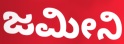
ಜಮೀನಿ